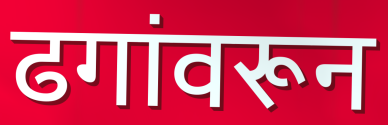
ढगांवरून